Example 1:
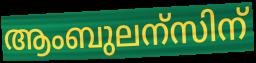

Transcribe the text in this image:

ആംബുലന്സിന്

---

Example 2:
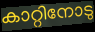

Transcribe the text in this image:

കാറ്റിനോടു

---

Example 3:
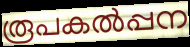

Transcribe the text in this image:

രൂപകൽപ്പന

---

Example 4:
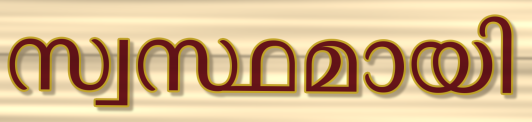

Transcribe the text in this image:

സ്വസ്ഥമായി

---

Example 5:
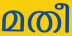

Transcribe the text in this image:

മതീ